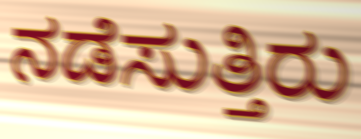
ನಡೆಸುತ್ತಿರು